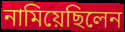
নামিয়েছিলেন